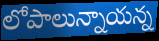
లోపాలున్నాయన్న